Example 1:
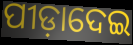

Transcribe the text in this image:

ପୀଡ଼ାଦେଇ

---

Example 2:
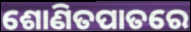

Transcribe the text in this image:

ଶୋଣିତପାତରେ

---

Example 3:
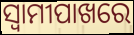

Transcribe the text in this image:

ସ୍ୱାମୀପାଖରେ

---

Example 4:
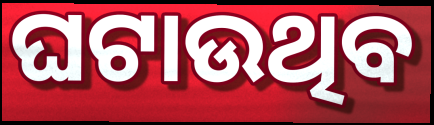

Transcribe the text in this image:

ଘଟାଉଥିବ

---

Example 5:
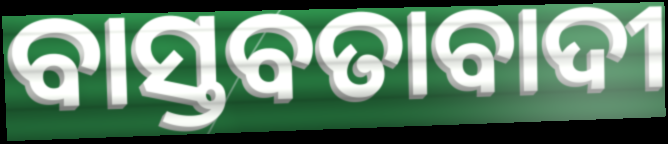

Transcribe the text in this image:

ବାସ୍ତବତାବାଦୀ